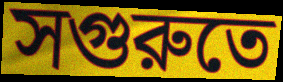
সগুরুতে